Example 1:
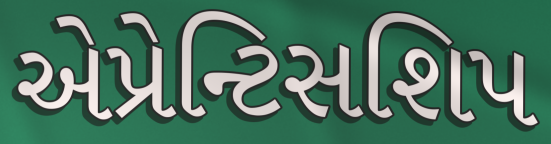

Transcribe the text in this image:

એપ્રેન્ટિસશિપ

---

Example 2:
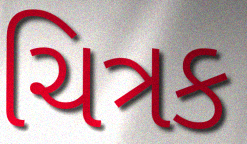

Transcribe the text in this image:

ચિત્રક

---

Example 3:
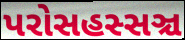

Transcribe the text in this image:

પરોસહસ્સઞ્ચ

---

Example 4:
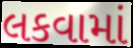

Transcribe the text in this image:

લકવામાં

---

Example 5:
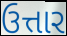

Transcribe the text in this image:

ઉત્તાર